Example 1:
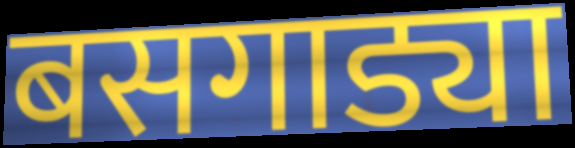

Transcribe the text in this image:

बसगाड्या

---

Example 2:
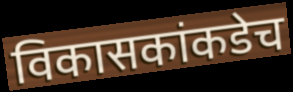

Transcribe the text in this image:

विकासकांकडेच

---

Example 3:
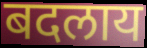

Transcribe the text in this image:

बदलाय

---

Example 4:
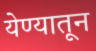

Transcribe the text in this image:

येण्यातून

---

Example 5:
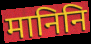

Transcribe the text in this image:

मानिनि